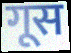
गूस